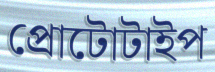
প্রোটোটাইপ